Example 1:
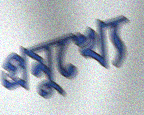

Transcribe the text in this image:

প্ৰমুখ্যে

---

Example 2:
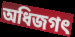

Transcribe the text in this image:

অধিজগৎ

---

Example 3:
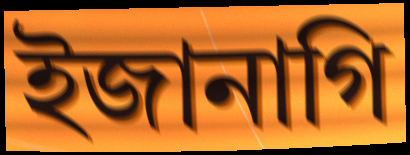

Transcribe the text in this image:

ইজানাগি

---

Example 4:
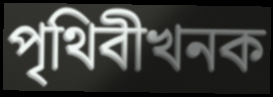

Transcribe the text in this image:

পৃথিবীখনক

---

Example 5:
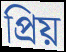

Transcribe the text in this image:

প্ৰিয়